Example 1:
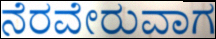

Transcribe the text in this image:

ನೆರವೇರುವಾಗ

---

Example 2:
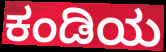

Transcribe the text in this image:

ಕಂಡಿಯ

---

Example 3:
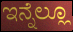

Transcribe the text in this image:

ಇನ್ನೆಲ್ಲೂ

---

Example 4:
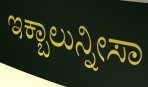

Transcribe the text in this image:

ಇಕ್ಬಾಲುನ್ನೀಸಾ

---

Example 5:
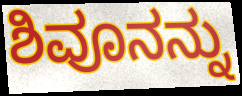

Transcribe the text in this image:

ಶಿವೂನನ್ನು